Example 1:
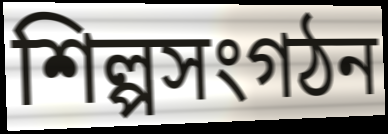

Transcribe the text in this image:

শিল্পসংগঠন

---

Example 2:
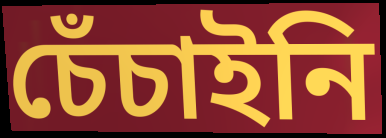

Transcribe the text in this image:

চেঁচাইনি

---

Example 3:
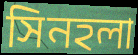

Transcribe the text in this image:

সিনহলা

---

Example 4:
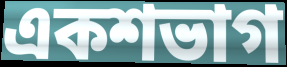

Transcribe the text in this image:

একশভাগ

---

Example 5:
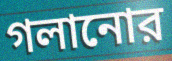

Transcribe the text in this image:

গলানোর